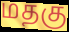
மதகு